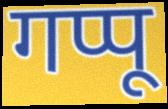
गप्पू